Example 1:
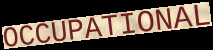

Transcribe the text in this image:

OCCUPATIONAL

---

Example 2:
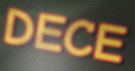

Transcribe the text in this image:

DECE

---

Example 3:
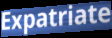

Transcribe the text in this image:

Expatriate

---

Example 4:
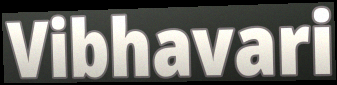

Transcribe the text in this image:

Vibhavari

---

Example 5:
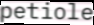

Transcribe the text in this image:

petiole